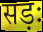
सड़ः